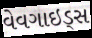
વેવગાઇડ્સ